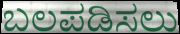
ಬಲಪಡಿಸಲು